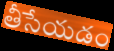
తీసేయడం